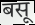
बसू